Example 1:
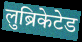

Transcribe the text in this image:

लुब्रिकेटेड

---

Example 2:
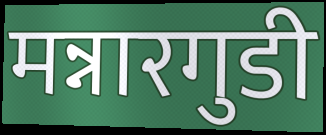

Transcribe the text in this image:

मन्नारगुडी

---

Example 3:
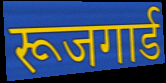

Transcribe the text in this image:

रूजगार्ड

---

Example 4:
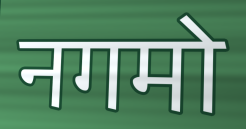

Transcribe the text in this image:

नगमो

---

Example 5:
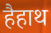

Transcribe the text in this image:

हैहाथ